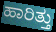
ಹಾರಿತ್ತು